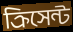
ক্রিসেন্ট